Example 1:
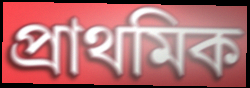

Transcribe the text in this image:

প্রাথমিক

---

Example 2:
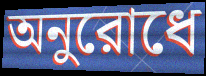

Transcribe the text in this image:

অনুরোধে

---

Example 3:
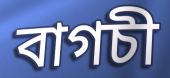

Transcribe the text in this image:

বাগচী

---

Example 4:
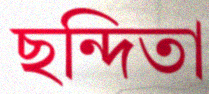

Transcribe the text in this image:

ছন্দিতা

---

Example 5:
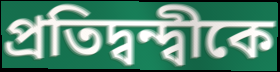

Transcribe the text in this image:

প্রতিদ্বন্দ্বীকে